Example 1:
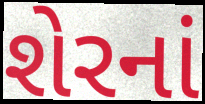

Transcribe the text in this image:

શેરનાં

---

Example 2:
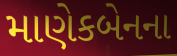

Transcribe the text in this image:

માણેકબેનના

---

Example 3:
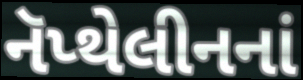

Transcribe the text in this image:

નૅપ્થેલીનનાં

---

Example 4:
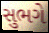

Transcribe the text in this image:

સુભગે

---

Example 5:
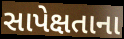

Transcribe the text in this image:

સાપેક્ષતાના